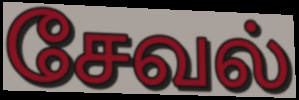
சேவல்